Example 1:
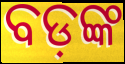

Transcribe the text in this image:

ବଡ଼ଙ୍କ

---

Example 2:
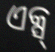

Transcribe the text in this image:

ଏକ୍ସ୍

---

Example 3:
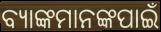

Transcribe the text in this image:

ବ୍ୟାଙ୍କମାନଙ୍କପାଇଁ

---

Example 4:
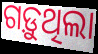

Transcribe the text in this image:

ଗଡ଼ୁଥିଲା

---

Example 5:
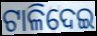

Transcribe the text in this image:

ଟାଳିଦେଇ